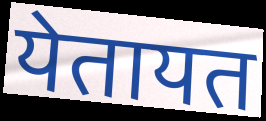
येतायत